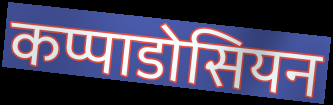
कप्पाडोसियन